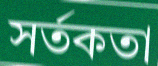
সর্তকতা